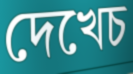
দেখেচ